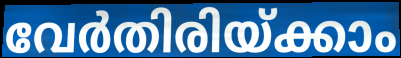
വേർതിരിയ്ക്കാം